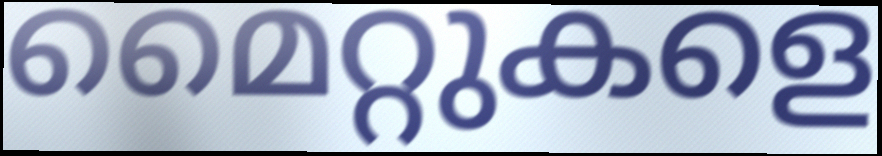
മൈറ്റുകളെ